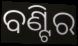
ବଣ୍ଟିର